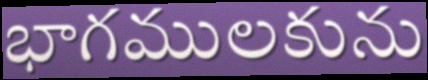
భాగములకును